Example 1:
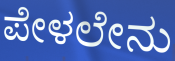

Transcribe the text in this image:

ಪೇಳಲೇನು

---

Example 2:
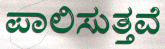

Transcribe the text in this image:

ಪಾಲಿಸುತ್ತವೆ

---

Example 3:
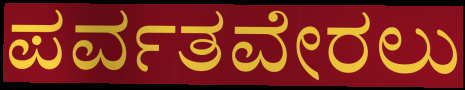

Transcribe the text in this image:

ಪರ್ವತವೇರಲು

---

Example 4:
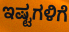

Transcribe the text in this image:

ಇಷ್ಟಗಳಿಗೆ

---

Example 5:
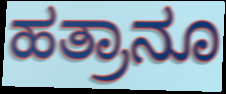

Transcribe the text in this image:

ಹತ್ರಾನೂ